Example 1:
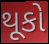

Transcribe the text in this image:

થૂકો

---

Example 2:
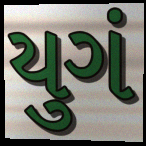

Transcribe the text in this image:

યુગં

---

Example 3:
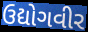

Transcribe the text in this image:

ઉદ્યોગવીર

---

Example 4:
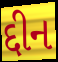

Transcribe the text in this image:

દ્દીન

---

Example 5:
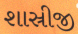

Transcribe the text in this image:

શાસ્રીજી